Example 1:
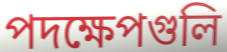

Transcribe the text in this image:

পদক্ষেপগুলি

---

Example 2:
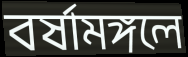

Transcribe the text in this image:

বর্ষামঙ্গলে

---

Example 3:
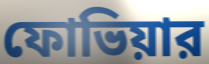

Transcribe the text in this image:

ফোভিয়ার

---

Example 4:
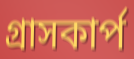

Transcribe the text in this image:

গ্রাসকার্প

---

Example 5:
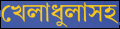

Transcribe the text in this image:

খেলাধুলাসহ